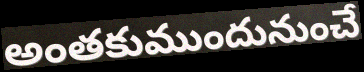
అంతకుముందునుంచే